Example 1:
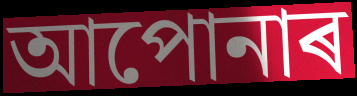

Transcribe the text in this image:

আপোনাৰ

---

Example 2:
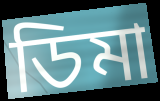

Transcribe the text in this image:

ডিমা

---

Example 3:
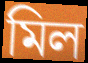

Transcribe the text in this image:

মিল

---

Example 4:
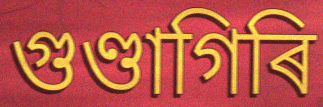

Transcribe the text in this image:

গুণ্ডাগিৰি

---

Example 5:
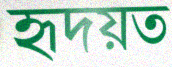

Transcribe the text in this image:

হৃদয়ত